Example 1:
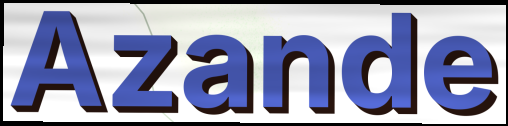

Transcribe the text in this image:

Azande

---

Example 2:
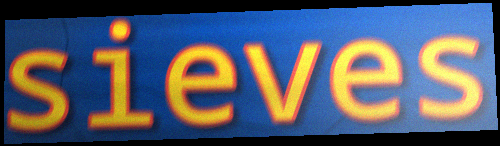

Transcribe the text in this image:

sieves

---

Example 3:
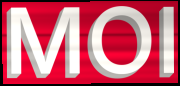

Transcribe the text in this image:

MOI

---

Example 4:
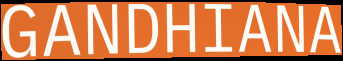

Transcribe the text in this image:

GANDHIANA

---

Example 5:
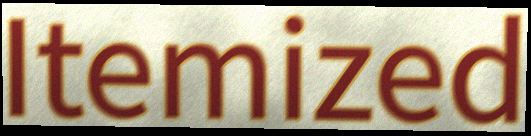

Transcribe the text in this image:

Itemized